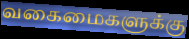
வகைமைகளுக்கு